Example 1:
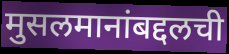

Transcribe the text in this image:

मुसलमानांबद्दलची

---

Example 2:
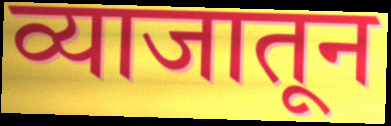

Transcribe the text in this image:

व्याजातून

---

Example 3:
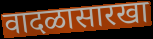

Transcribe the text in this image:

वादळासारखा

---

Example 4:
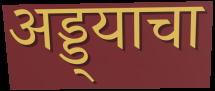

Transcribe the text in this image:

अड्ड्याचा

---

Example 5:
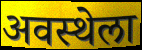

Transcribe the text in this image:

अवस्थेला